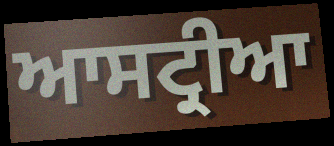
ਆਸਟ੍ਰੀਆ